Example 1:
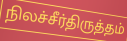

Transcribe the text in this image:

நிலச்சீர்திருத்தம்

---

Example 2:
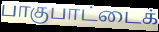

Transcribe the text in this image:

பாகுபாட்டைக்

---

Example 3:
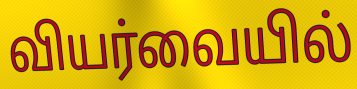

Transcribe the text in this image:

வியர்வையில்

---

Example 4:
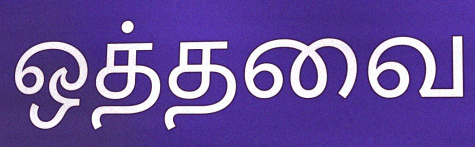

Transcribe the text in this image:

ஒத்தவை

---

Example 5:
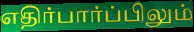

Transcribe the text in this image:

எதிர்பார்ப்பிலும்